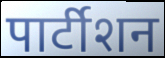
पार्टीशन